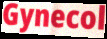
Gynecol